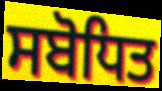
ਸਬੋਧਿਤ